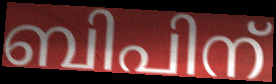
ബിപിന്